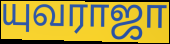
யுவராஜா